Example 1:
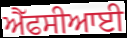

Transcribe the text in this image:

ਐੱਫਸੀਆਈ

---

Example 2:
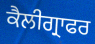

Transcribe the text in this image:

ਕੈਲੀਗ੍ਰਾਫਰ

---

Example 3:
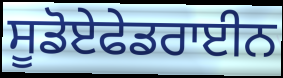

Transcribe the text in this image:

ਸੂਡੋਏਫੇਡਰਾਈਨ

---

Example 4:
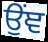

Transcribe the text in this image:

ਉਂਞ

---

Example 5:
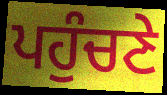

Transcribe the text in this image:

ਪਹੁੰਚਣੇ